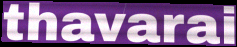
thavarai